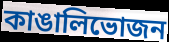
কাঙালিভোজন